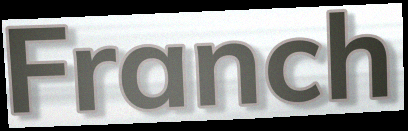
Franch